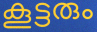
കൂട്ടരും